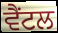
ਵੈਂਟਲ